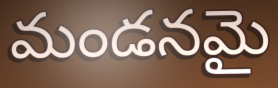
మండనమై